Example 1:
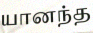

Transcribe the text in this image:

யானந்த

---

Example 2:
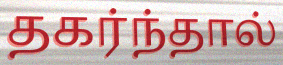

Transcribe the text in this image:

தகர்ந்தால்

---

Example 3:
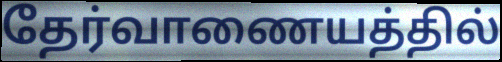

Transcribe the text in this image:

தேர்வாணையத்தில்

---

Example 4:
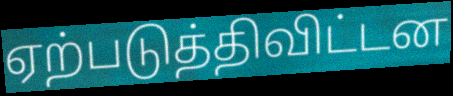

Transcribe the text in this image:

ஏற்படுத்திவிட்டன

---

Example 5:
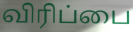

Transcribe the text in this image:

விரிப்பை